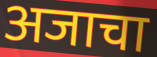
अजाचा